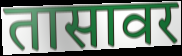
तासावर